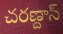
చరణ్దాస్